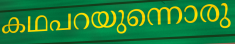
കഥപറയുന്നൊരു